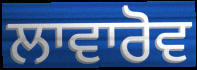
ਲਾਵਾਰੋਵ